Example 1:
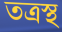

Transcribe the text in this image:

তত্রস্থ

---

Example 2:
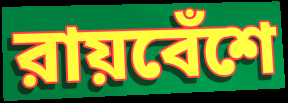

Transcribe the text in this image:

রায়বেঁশে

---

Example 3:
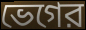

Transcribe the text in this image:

ভেগের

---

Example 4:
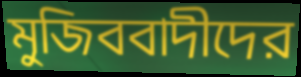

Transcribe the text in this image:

মুজিববাদীদের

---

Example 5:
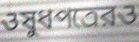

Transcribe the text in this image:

ওষুধপত্রেরও